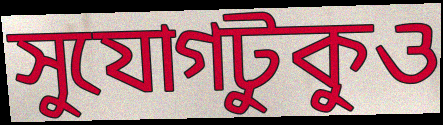
সুযোগটুকুও